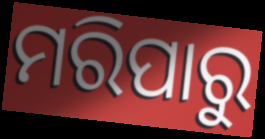
ମରିପାରୁ